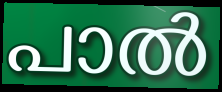
പാൽ